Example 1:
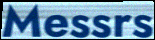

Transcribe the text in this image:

Messrs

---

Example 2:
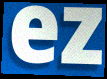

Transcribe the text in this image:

ez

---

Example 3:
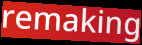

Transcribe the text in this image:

remaking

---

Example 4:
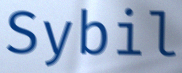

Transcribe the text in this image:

Sybil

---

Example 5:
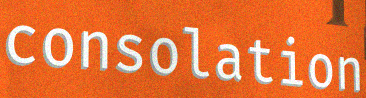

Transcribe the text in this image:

consolation